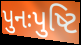
પુનઃપુષ્ટિ